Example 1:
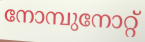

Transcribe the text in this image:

നോമ്പുനോറ്റ്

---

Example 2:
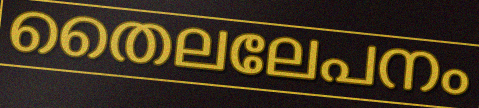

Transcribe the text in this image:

തൈലലേപനം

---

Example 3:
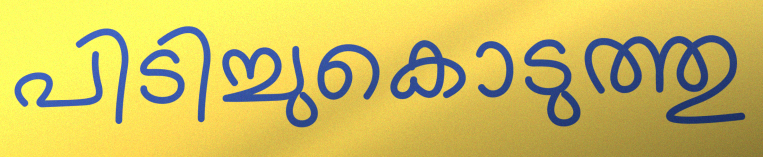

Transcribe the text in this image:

പിടിച്ചുകൊടുത്തു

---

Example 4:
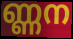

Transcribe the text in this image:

ണ്ണന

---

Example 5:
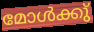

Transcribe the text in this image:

മോൾക്കു്